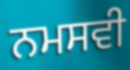
ਨਮਸਵੀ